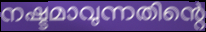
നഷ്ടമാവുന്നതിന്റെ